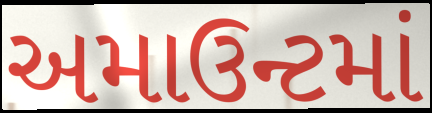
અમાઉન્ટમાં